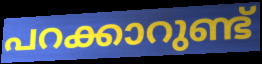
പറക്കാറുണ്ട്